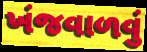
ખંજવાળવું